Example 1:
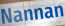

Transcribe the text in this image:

Nannan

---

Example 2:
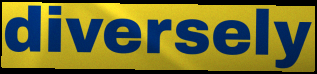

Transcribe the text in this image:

diversely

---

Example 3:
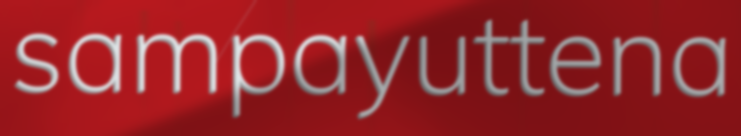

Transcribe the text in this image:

sampayuttena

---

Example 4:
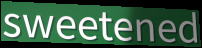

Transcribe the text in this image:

sweetened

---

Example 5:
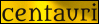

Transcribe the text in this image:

centauri